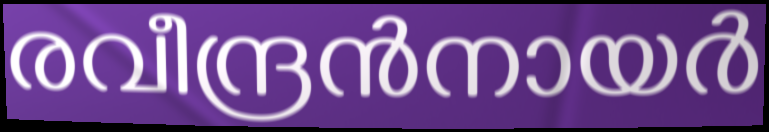
രവീന്ദ്രൻനായർ